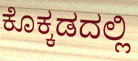
ಕೊಕ್ಕಡದಲ್ಲಿ